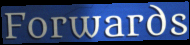
Forwards